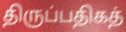
திருப்பதிகத்